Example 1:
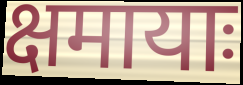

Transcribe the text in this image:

क्षमायाः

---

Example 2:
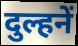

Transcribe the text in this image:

दुल्हनें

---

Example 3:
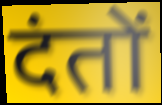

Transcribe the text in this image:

दंतों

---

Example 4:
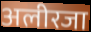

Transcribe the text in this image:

अलीरजा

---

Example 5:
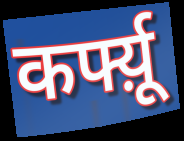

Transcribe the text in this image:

कर्फ्य़ू